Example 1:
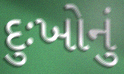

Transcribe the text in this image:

દુઃખોનું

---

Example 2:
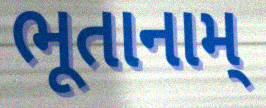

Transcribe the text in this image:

ભૂતાનામ્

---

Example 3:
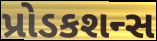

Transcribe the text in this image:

પ્રોડકશન્સ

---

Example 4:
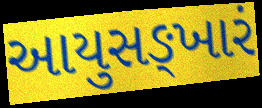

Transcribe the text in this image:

આયુસઙ્ખારં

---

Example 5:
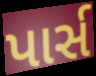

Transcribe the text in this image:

પાર્સ